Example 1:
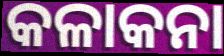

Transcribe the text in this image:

କଳାକନା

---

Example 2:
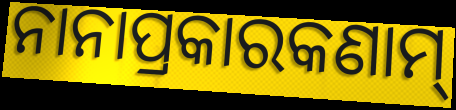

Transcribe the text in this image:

ନାନାପ୍ରକାରକଣାମ୍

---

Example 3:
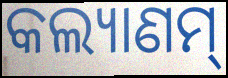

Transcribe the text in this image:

କଲ୍ୟାଣମ୍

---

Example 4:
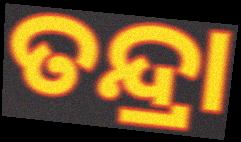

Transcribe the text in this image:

ତନ୍ଦ୍ରା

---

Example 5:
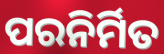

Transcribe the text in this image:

ପରନିର୍ମିତ